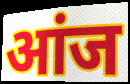
आंज